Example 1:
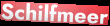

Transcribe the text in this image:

Schilfmeer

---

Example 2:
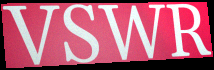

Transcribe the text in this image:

VSWR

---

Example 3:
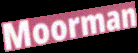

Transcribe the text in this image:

Moorman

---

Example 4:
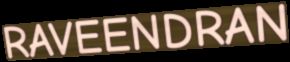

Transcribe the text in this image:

RAVEENDRAN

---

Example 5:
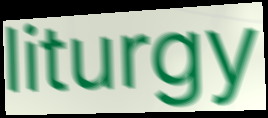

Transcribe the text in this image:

liturgy